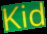
Kid